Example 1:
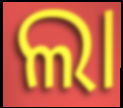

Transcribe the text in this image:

ଲା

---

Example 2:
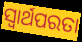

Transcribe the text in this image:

ସ୍ବାର୍ଥପରତା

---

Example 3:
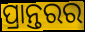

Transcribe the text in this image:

ପ୍ରାନ୍ତରର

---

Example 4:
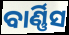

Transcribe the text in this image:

ବାର୍ଣ୍ଣିସ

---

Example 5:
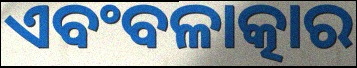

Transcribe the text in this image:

ଏବଂବଳାତ୍କାର